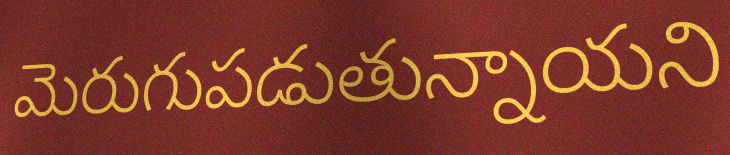
మెరుగుపడుతున్నాయని